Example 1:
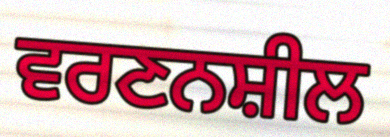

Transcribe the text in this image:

ਵਰਣਨਸ਼ੀਲ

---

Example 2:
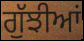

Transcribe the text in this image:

ਗੁੱਝੀਆਂ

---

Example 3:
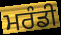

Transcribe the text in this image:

ਮਰੰਡੀ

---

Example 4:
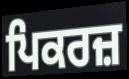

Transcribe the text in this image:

ਪਿਕਰਜ਼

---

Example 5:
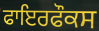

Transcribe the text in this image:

ਫਾਇਰਫੌਕਸ